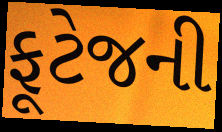
ફૂટેજની